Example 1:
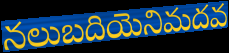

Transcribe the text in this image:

నలుబదియెనిమదవ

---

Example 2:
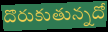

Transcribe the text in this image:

దొరుకుతున్నదో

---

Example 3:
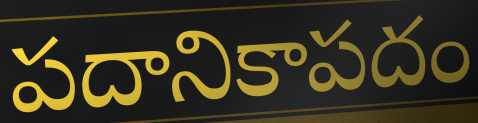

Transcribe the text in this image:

పదానికాపదం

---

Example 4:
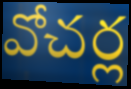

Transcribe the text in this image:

వోచర్ల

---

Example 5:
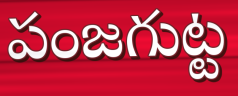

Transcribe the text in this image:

పంజగుట్ట